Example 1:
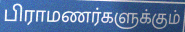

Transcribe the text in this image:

பிராமணர்களுக்கும்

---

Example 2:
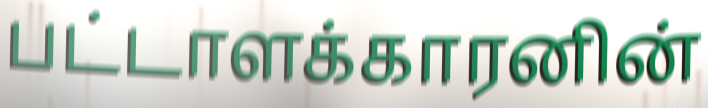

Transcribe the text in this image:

பட்டாளக்காரனின்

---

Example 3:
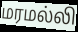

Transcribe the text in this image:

மரமல்லி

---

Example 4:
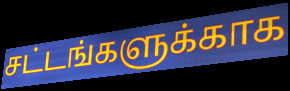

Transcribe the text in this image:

சட்டங்களுக்காக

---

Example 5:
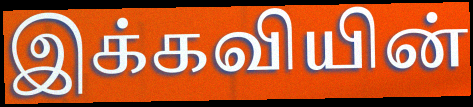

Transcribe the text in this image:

இக்கவியின்